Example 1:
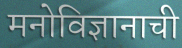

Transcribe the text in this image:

मनोविज्ञानाची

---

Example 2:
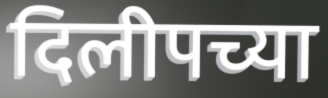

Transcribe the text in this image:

दिलीपच्या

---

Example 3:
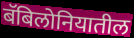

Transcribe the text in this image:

बॅबिलोनियातील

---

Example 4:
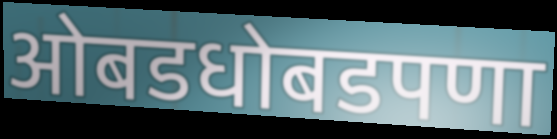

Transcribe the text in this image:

ओबडधोबडपणा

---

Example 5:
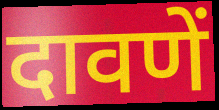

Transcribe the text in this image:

दावणें